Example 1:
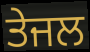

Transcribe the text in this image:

ਤੇਜਲ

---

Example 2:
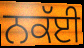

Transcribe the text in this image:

ਨਕੱਈ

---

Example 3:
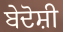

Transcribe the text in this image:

ਬੇਦੋਸ਼ੀ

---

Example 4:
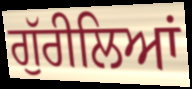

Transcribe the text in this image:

ਗੁੱਰੀਲਿਆਂ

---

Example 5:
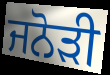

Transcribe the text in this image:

ਜਨੋੜੀ